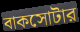
বাকসোটার